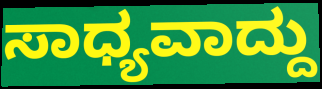
ಸಾಧ್ಯವಾದ್ದು